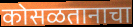
कोसळतानाचा